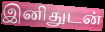
இனிதுடன்